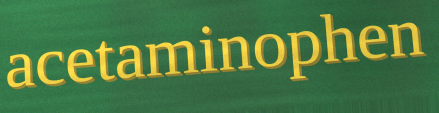
acetaminophen